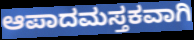
ಆಪಾದಮಸ್ತಕವಾಗಿ